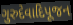
ગુરુદેવાદિપૂજન